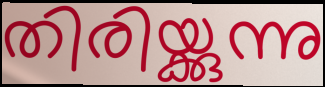
തിരിയ്ക്കുന്നു